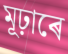
মূঢ়াৰে